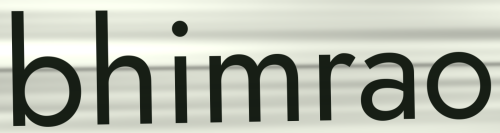
bhimrao